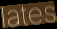
lates